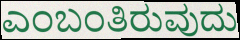
ಎಂಬಂತಿರುವುದು